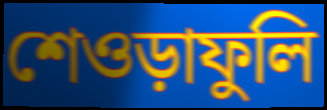
শেওড়াফুলি